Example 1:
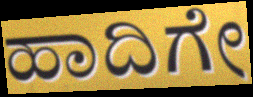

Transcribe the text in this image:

ಹಾದಿಗೇ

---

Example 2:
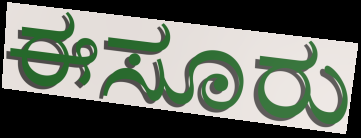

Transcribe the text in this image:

ಈಸೂರು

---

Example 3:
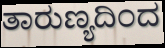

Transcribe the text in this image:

ತಾರುಣ್ಯದಿಂದ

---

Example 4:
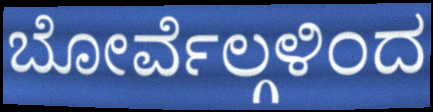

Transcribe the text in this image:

ಬೋರ್ವೆಲ್ಗಳಿಂದ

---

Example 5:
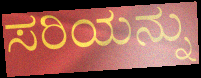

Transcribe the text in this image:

ಸರಿಯನ್ನು